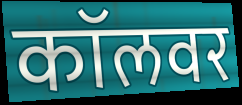
कॉलवर